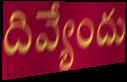
దివ్యేందు